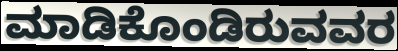
ಮಾಡಿಕೊಂಡಿರುವವರ